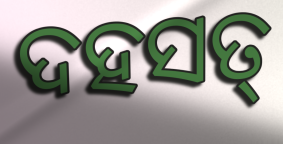
ଦହସତ୍